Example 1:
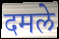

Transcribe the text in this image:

दमले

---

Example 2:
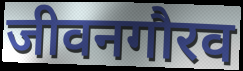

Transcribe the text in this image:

जीवनगौरव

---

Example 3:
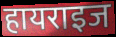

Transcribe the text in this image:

हायराइज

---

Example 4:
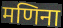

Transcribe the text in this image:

मणिना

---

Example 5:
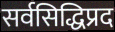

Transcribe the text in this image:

सर्वसिद्धिप्रद